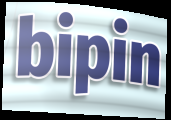
bipin